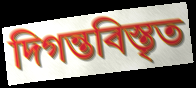
দিগন্তবিস্তৃত